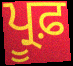
ਪ੍ਰੂਫ਼